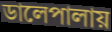
ডালেপালায়